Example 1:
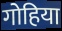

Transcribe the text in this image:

गोहिया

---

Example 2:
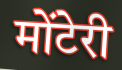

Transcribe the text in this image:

मोंटेरी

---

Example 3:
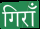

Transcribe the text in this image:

गिराँ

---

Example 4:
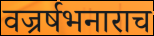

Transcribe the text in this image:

वज्रर्षभनाराच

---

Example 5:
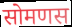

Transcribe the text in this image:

सोमणस